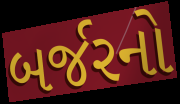
બર્જરનો